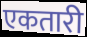
एकतारी